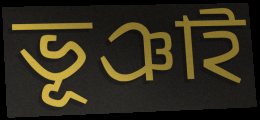
ভূঞাই